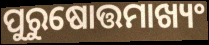
ପୁରୁଷୋତ୍ତମାଖ୍ୟଂ